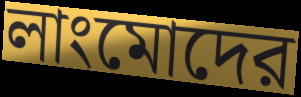
লাংমোদের